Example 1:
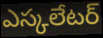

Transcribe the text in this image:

ఎస్కలేటర్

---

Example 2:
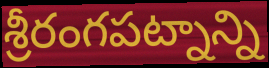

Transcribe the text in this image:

శ్రీరంగపట్నాన్ని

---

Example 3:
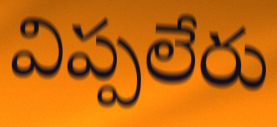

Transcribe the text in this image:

విప్పలేరు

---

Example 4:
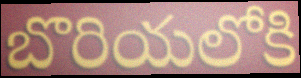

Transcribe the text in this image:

బొరియలోకి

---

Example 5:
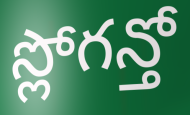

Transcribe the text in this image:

స్లోగన్తో